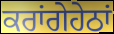
ਕਰਾਂਗੇਹੇਠਾਂ